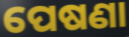
ପେଷଣା